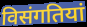
विसंगतियां